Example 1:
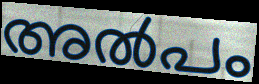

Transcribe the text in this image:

അൽപം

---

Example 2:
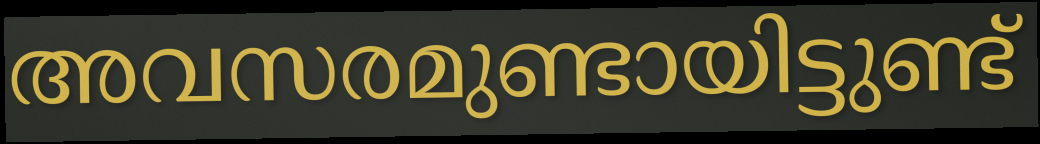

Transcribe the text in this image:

അവസരമുണ്ടായിട്ടുണ്ട്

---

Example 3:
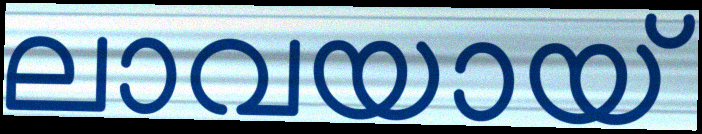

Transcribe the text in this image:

ലാവയായ്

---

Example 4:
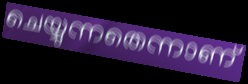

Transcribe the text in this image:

ചെയ്യുന്നതെന്നാണ്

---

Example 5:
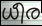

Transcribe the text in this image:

ധീര